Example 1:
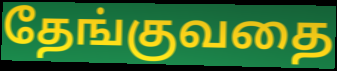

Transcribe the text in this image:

தேங்குவதை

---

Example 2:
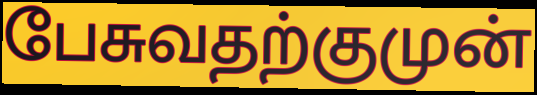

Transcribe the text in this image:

பேசுவதற்குமுன்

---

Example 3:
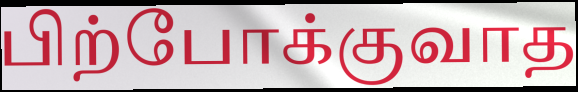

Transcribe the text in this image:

பிற்போக்குவாத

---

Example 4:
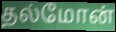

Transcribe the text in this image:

தல்மோன்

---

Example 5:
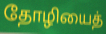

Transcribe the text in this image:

தோழியைத்